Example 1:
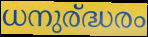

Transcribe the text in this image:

ധനുര്ദ്ധരം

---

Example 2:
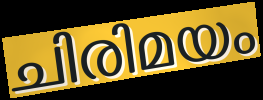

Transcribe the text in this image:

ചിരിമയം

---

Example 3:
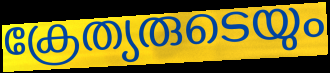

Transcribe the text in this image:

ക്രേത്യരുടെയും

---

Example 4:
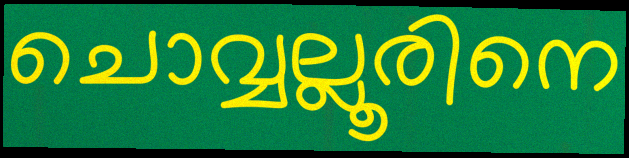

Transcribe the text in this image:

ചൊവ്വല്ലൂരിനെ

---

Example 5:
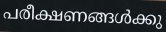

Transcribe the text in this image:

പരീക്ഷണങ്ങൾക്കു